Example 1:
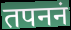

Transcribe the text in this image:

तपननं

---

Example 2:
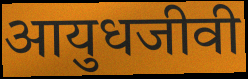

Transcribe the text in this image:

आयुधजीवी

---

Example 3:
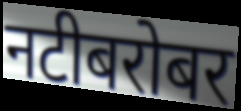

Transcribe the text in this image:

नटीबरोबर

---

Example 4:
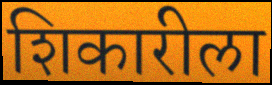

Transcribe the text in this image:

शिकारीला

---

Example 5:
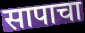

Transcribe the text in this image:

सापाचा